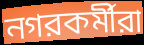
নগরকর্মীরা